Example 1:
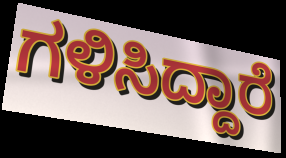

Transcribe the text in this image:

ಗಳಿಸಿದ್ದಾರೆ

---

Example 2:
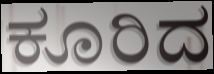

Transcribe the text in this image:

ಕೂರಿದ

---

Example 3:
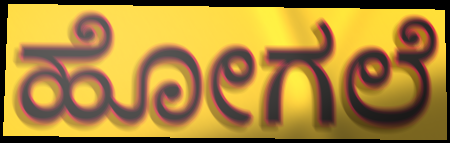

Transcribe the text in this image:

ಹೋಗಲೆ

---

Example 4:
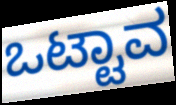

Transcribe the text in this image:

ಒಟ್ಟಾವ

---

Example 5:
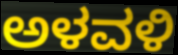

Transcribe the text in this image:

ಅಳವಳಿ